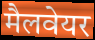
मैलवेयर